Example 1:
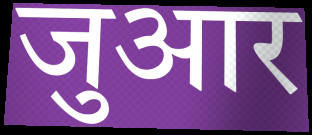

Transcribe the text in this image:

जुआर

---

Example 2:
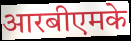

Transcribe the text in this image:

आरबीएमके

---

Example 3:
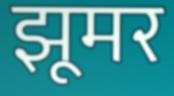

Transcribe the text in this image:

झूमर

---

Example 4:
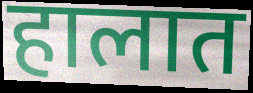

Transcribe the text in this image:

हालात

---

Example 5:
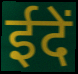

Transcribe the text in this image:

ईदें